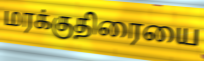
மரக்குதிரையை